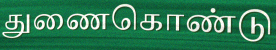
துணைகொண்டு